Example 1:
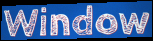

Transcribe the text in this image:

Window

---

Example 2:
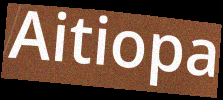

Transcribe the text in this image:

Aitiopa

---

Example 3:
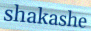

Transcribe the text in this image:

shakashe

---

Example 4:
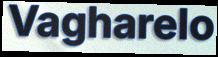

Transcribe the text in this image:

Vagharelo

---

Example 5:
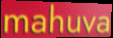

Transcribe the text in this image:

mahuva